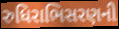
રુધિરાભિસરણની